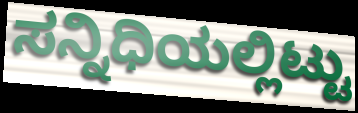
ಸನ್ನಿಧಿಯಲ್ಲಿಟ್ಟು